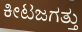
ಕೀಟಜಗತ್ತು